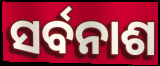
ସର୍ବନାଶ